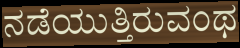
ನಡೆಯುತ್ತಿರುವಂಥ